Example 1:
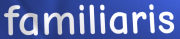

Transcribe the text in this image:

familiaris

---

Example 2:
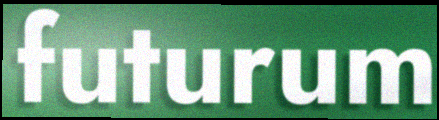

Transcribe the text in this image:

futurum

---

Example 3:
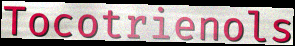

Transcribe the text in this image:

Tocotrienols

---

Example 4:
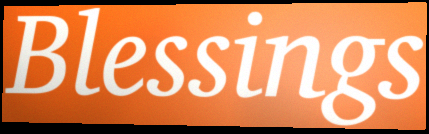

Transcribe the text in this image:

Blessings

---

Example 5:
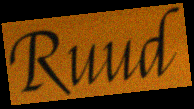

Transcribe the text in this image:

Ruud